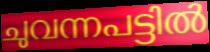
ചുവന്നപട്ടിൽ